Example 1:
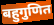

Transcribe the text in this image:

बहुगुणित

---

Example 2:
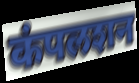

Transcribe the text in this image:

कंपलशन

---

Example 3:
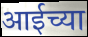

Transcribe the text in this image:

आईच्या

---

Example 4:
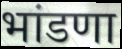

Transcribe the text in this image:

भांडणा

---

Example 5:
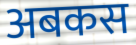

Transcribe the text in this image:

अबकस